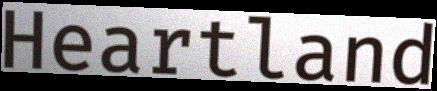
Heartland